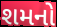
શમનો